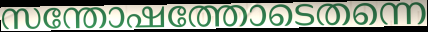
സന്തോഷത്തോടെതന്നെ